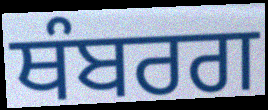
ਥੰਬਰਗ